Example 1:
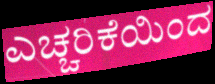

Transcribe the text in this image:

ಎಚ್ಚರಿಕೆಯಿಂದ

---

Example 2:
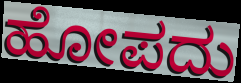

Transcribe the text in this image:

ಹೋಪದು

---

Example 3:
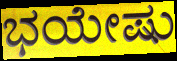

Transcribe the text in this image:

ಭಯೇಷು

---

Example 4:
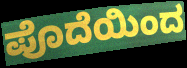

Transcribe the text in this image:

ಪೊದೆಯಿಂದ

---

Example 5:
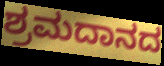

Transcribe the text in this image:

ಶ್ರಮದಾನದ